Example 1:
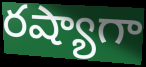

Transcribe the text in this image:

రష్యాగా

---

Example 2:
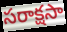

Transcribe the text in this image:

సరాక్షసా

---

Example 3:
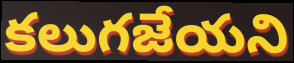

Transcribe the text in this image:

కలుగజేయని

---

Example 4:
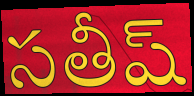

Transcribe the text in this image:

సతీష్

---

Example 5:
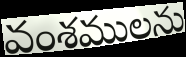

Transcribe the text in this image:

వంశములను